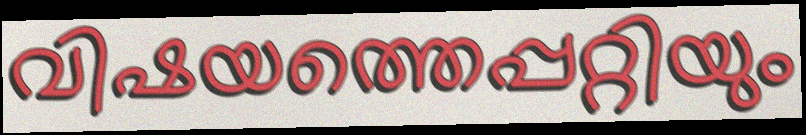
വിഷയത്തെപ്പറ്റിയും